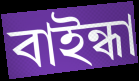
বাইন্ধা